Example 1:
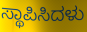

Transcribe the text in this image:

ಸ್ಥಾಪಿಸಿದಳು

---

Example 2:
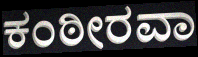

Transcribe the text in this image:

ಕಂಠೀರವಾ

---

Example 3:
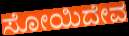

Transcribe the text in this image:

ಸೋಯಿದೇವ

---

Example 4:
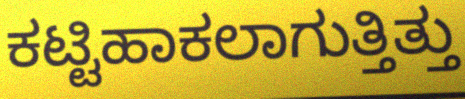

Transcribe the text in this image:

ಕಟ್ಟಿಹಾಕಲಾಗುತ್ತಿತ್ತು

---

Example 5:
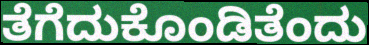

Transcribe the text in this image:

ತೆಗೆದುಕೊಂಡಿತೆಂದು